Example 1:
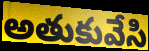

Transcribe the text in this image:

అతుకువేసి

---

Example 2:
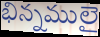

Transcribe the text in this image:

భిన్నములై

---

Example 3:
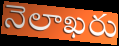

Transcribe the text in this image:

నెలాఖరు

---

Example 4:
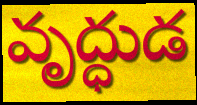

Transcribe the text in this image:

వృద్ధుడ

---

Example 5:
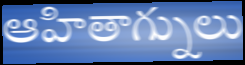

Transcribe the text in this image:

ఆహితాగ్నులు